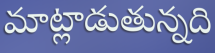
మాట్లాడుతున్నది